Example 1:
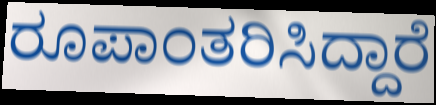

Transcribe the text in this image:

ರೂಪಾಂತರಿಸಿದ್ದಾರೆ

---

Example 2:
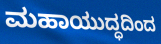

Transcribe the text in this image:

ಮಹಾಯುದ್ಧದಿಂದ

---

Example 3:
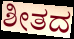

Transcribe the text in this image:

ಶೀತದ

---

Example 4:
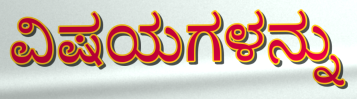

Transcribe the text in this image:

ವಿಷಯಗಳನ್ನು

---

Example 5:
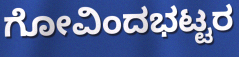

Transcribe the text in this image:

ಗೋವಿಂದಭಟ್ಟರ